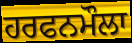
ਹਰਫਨਮੌਲਾ